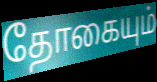
தோகையும்